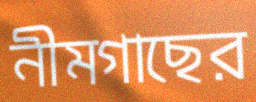
নীমগাছের